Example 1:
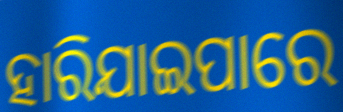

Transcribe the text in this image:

ହାରିଯାଇପାରେ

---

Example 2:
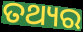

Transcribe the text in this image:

ତଥ୍ୟର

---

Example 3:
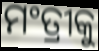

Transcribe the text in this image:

ମଂତ୍ରୀକୁ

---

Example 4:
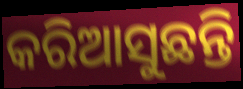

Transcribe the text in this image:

କରିଆସୁଛନ୍ତି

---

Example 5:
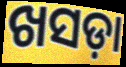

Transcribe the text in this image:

ଖସଡ଼ା